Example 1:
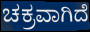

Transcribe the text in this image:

ಚಕ್ರವಾಗಿದೆ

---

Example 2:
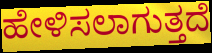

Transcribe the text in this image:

ಹೇಳಿಸಲಾಗುತ್ತದೆ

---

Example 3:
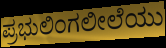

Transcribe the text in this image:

ಪ್ರಭುಲಿಂಗಲೀಲೆಯು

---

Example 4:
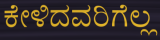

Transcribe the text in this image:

ಕೇಳಿದವರಿಗೆಲ್ಲ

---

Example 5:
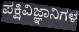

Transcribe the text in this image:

ಪಕ್ಷಿವಿಜ್ಞಾನಿಗಳ